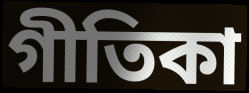
গীতিকা